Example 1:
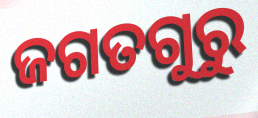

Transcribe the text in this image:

ଜଗତଗୁରୁ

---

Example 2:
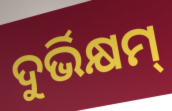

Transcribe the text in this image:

ଦୁର୍ଭିକ୍ଷମ୍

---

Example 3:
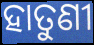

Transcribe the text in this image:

ହାତୁଣୀ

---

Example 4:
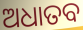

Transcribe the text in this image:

ଅଧାତବ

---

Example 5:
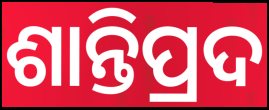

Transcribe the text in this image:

ଶାନ୍ତିପ୍ରଦ